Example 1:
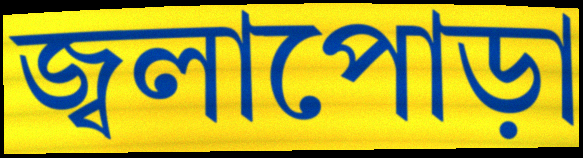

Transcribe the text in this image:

জ্বলাপোড়া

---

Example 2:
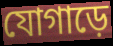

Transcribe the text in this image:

যোগাড়ে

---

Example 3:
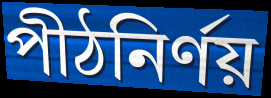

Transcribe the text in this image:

পীঠনির্ণয়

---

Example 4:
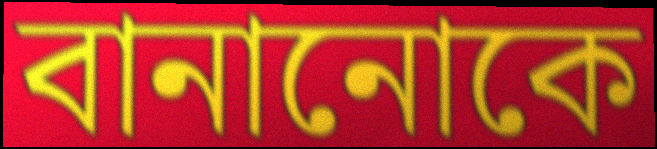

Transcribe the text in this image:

বানানোকে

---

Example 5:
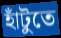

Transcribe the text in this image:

হাঁটুতে